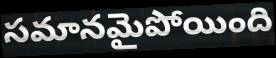
సమానమైపోయింది